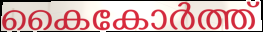
കൈകോർത്ത്